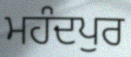
ਮਹੰਦਪੁਰ